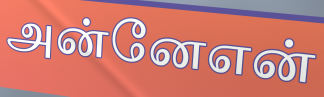
அன்னேஎன்